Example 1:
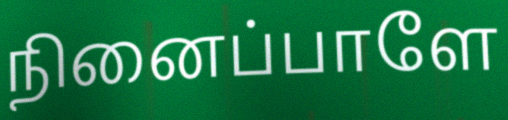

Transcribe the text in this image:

நினைப்பாளே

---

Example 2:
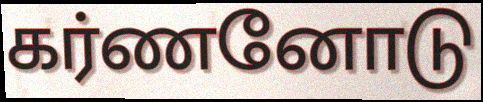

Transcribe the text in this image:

கர்ணனோடு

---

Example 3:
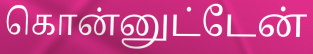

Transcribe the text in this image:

கொன்னுட்டேன்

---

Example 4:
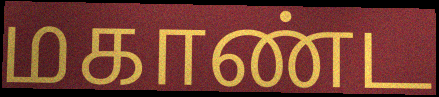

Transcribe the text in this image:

மகாண்ட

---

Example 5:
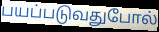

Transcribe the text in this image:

பயப்படுவதுபோல்